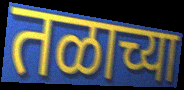
तळाच्या